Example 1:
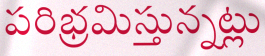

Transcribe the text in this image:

పరిభ్రమిస్తున్నట్లు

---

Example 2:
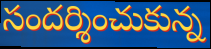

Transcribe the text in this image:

సందర్శించుకున్న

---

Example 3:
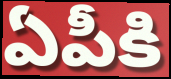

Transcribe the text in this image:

ఏపీకి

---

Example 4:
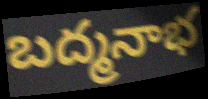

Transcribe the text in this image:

బద్మనాభ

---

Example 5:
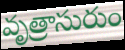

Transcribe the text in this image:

వృత్రాసురుం